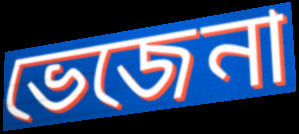
ভেজেনা